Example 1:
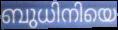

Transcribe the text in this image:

ബുധിനിയെ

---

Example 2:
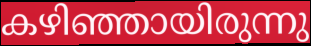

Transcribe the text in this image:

കഴിഞ്ഞായിരുന്നു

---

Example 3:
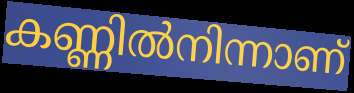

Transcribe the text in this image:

കണ്ണിൽനിന്നാണ്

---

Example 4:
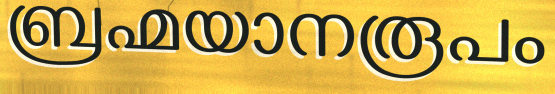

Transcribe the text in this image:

ബ്രഹ്മയാനരൂപം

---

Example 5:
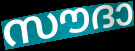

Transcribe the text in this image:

സൗദാ